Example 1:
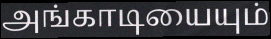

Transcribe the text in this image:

அங்காடியையும்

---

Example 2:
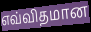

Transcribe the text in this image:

எவ்விதமான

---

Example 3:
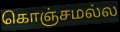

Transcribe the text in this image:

கொஞ்சமல்ல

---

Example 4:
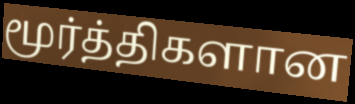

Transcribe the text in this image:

மூர்த்திகளான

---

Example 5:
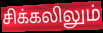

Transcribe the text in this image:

சிக்கலிலும்